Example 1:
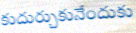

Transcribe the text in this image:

కుదుర్చుకునేందుకు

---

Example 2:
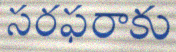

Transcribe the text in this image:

సరఫరాకు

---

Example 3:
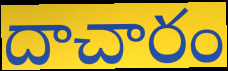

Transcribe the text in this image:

దాచారం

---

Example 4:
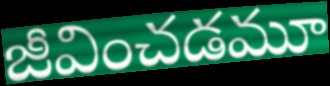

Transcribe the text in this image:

జీవించడమూ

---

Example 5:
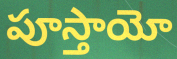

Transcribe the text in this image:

పూస్తాయో